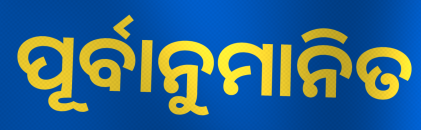
ପୂର୍ବାନୁମାନିତ